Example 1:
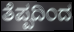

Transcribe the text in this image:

ತೆಪ್ಪದಿಂದ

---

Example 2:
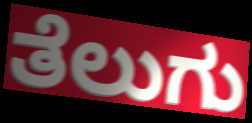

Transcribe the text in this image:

ತೆಲುಗು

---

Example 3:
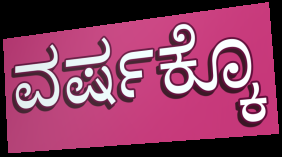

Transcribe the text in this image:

ವರ್ಷಕ್ಕೊ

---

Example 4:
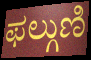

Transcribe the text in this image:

ಫಲ್ಗುಣಿ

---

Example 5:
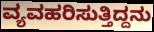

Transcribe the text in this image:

ವ್ಯವಹರಿಸುತ್ತಿದ್ದನು